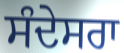
ਸੰਦੇਸਰਾ